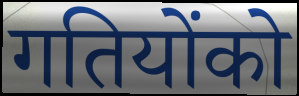
गतियोंको